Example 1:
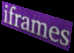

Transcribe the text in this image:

iframes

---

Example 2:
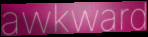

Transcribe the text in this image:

awkward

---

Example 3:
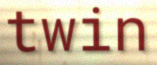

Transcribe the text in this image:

twin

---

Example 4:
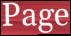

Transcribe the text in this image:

Page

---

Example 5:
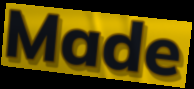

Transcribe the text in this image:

Made